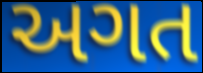
અગત